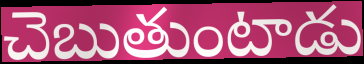
చెబుతుంటాడు